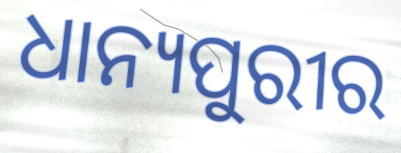
ଧାନ୍ୟପୁରୀର